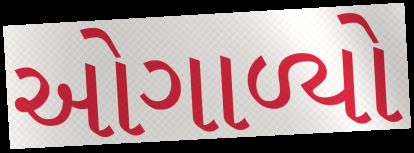
ઓગાળ્યો